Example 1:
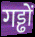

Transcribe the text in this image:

गड्ढों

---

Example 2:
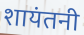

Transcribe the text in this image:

शायंतनी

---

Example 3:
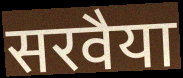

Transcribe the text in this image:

सरवैया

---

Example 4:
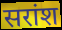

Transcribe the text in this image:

सरांश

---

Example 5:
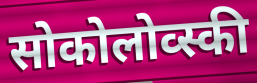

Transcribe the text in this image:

सोकोलोव्स्की